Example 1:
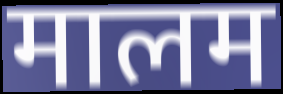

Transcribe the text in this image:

मालम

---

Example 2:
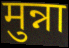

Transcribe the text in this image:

मुन्ना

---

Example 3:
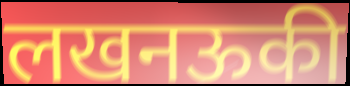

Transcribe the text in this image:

लखनऊकी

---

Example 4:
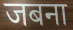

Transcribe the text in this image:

जबना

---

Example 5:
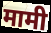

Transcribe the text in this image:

मामी